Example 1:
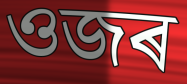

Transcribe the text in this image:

ওজৰ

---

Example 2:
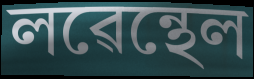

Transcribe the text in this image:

লৱেন্থেল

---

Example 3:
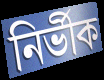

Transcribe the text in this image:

নিৰ্ভীক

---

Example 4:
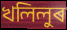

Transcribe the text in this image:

খলিলুৰ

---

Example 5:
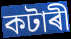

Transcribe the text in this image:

কটাৰী